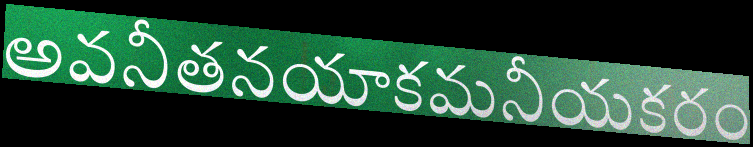
అవనీతనయాకమనీయకరం